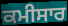
ਕਮੀਸਾਰ